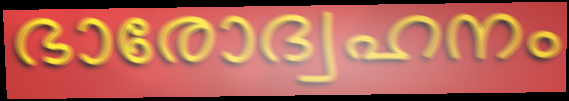
ഭാരോദ്വഹനം